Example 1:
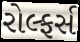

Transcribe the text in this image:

રોલ્ફર્સ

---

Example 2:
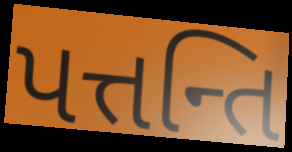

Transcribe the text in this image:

પત્તન્તિ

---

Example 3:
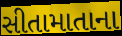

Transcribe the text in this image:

સીતામાતાના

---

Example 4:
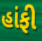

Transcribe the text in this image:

હાંફી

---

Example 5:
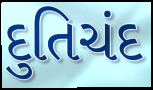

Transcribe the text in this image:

દુતિચંદ